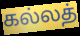
கல்லத்